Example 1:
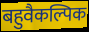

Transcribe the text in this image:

बहुवैकल्पिक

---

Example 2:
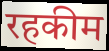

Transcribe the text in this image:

रहकीम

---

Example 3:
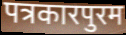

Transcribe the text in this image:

पत्रकारपुरम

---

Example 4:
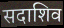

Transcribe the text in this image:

सदाशिव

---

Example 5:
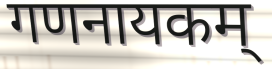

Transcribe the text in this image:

गणनायकम्